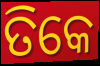
ତିକେ